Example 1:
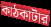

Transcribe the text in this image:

কাঠকাটার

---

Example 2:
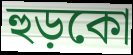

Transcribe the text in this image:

হুড়কো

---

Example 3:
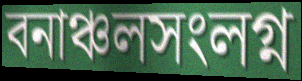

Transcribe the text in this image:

বনাঞ্চলসংলগ্ন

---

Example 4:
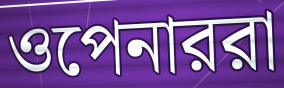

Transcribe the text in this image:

ওপেনাররা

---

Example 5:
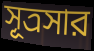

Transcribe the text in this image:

সূত্রসার